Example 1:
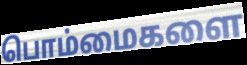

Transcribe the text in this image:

பொம்மைகளை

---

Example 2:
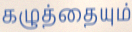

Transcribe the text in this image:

கழுத்தையும்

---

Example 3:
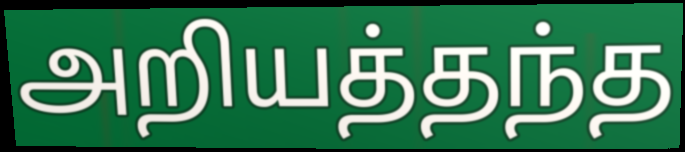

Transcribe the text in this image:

அறியத்தந்த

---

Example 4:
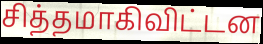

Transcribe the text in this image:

சித்தமாகிவிட்டன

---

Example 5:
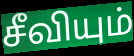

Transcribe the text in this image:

சீவியும்